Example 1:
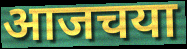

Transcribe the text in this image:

आजचया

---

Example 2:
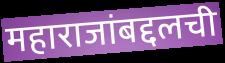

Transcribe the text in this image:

महाराजांबद्दलची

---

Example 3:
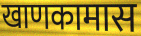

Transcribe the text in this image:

खाणकामास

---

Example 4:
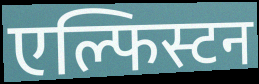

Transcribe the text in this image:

एल्फिस्टन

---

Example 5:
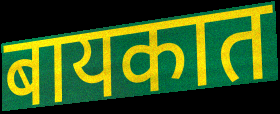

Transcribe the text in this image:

बायकात